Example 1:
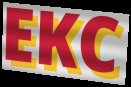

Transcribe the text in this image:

EKC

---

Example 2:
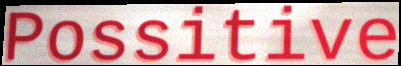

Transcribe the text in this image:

Possitive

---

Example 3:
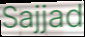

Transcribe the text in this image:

Sajjad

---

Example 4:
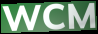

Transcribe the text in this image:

WCM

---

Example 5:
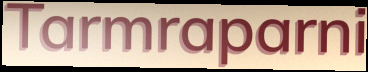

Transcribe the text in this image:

Tarmraparni